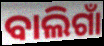
ବାଲିଗାଁ